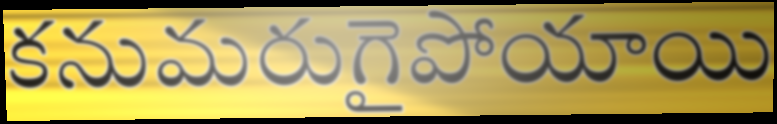
కనుమరుగైపోయాయి